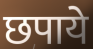
छपाये